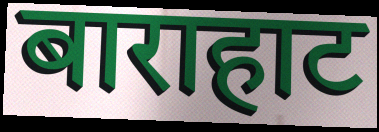
बाराहाट